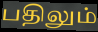
பதிலும்